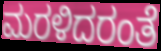
ಮರಳಿದರಂತೆ